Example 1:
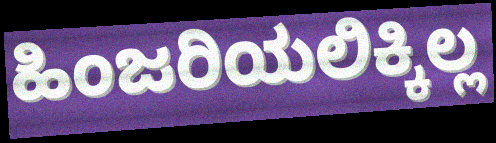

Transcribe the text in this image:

ಹಿಂಜರಿಯಲಿಕ್ಕಿಲ್ಲ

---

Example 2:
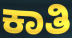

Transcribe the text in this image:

ಕಾತಿ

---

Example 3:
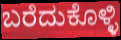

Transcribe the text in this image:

ಬರೆದುಕೊಳ್ಳಿ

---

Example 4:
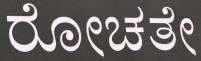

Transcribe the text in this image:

ರೋಚತೇ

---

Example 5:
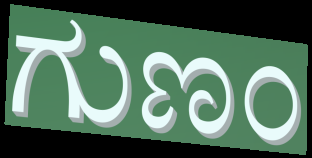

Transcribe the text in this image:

ಗುಣಂ